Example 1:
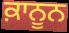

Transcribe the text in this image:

ਕ਼ਾਨੂਨ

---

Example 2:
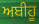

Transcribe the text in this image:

ਅਬੀਹੂ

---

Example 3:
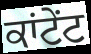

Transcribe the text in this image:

ਕਾਂਟੇਂਟ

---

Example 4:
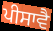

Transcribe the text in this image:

ਪੀਸਾਵੈ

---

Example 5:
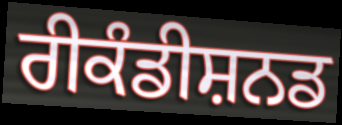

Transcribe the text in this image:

ਰੀਕੰਡੀਸ਼ਨਡ